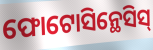
ଫୋଟୋସିନ୍ଥେସିସ୍